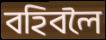
বহিবলৈ